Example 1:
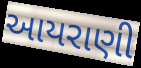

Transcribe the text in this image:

આયરાણી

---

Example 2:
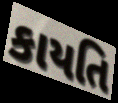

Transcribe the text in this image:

કાયતિ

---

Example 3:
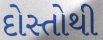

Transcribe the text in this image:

દોસ્તોથી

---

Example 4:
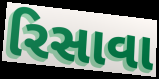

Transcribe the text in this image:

રિસાવા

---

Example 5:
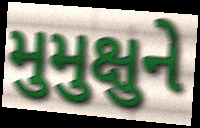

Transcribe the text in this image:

મુમુક્ષુને